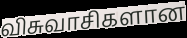
விசுவாசிகளான